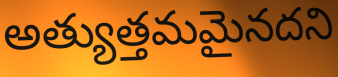
అత్యుత్తమమైనదని